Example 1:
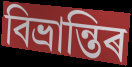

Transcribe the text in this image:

বিভ্ৰান্তিৰ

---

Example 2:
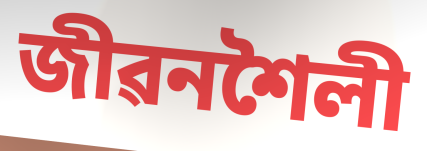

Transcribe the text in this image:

জীৱনশৈলী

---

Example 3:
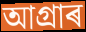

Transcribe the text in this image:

আগ্ৰাৰ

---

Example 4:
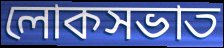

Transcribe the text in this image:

লোকসভাত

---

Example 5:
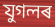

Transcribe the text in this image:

যুগলৰ